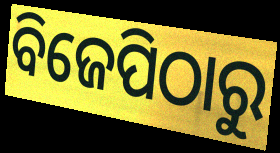
ବିଜେପିଠାରୁ